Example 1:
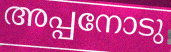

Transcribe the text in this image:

അപ്പനോടു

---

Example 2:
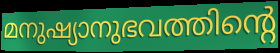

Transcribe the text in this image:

മനുഷ്യാനുഭവത്തിന്റെ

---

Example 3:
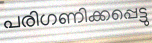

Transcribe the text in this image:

പരിഗണിക്കപ്പെട്ടു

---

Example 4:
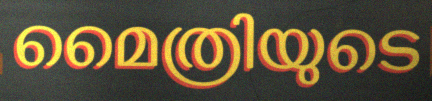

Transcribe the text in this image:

മൈത്രിയുടെ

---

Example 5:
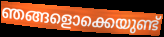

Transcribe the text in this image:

ഞങ്ങളൊക്കെയുണ്ട്